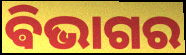
ଵିଭାଗର